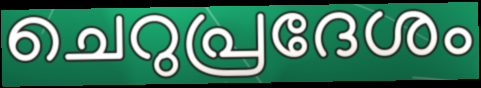
ചെറുപ്രദേശം